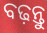
ବଢ଼ନ୍ତୁ